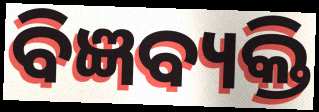
ବିଜ୍ଞବ୍ୟକ୍ତି